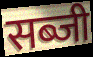
सब्ज़ी